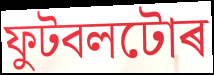
ফুটবলটোৰ